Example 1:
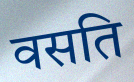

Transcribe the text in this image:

वसति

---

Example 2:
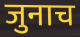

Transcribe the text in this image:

जुनाच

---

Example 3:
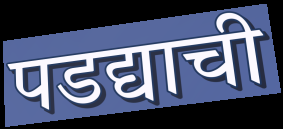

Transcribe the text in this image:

पडद्याची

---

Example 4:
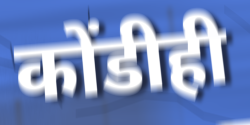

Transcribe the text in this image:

कोंडीही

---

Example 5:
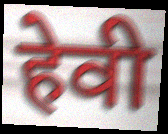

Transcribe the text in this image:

हेवी